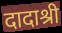
दादाश्री